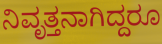
ನಿವೃತ್ತನಾಗಿದ್ದರೂ